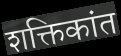
शक्तिकांत